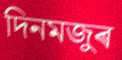
দিনমজুৰ